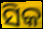
ସିକ